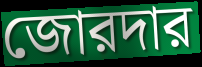
জোরদার